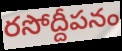
రసోద్దీపనం